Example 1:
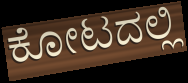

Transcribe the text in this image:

ಕೋಟದಲ್ಲಿ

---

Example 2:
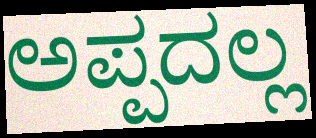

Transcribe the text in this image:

ಅಪ್ಪದಲ್ಲ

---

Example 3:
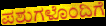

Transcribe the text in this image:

ಪಶುಗಳೊಂದಿಗೆ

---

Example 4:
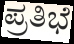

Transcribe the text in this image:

ಪ್ರತಿಭೆ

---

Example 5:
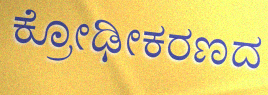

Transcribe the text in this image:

ಕ್ರೋಢೀಕರಣದ